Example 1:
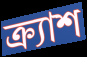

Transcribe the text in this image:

ক্র্যাশ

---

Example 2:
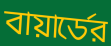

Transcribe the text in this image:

বায়ার্ডের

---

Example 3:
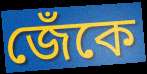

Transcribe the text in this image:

জেঁকে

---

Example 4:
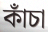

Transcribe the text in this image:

কাঁচা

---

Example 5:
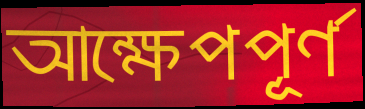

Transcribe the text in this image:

আক্ষেপপূর্ণ